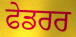
ਫੇਡਰਰ